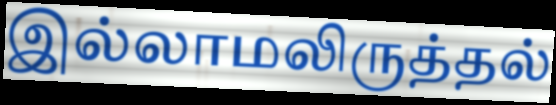
இல்லாமலிருத்தல்